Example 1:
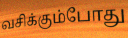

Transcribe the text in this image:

வசிக்கும்போது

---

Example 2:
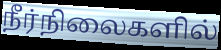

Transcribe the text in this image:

நீர்நிலைகளில்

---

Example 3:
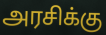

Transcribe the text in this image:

அரசிக்கு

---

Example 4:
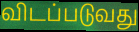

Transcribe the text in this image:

விடப்படுவது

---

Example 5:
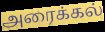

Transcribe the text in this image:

அரைக்கல்